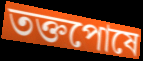
তক্তপোষে